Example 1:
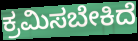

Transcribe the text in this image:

ಕ್ರಮಿಸಬೇಕಿದೆ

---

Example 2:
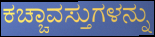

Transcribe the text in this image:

ಕಚ್ಚಾವಸ್ತುಗಳನ್ನು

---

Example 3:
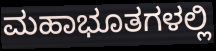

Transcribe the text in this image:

ಮಹಾಭೂತಗಳಲ್ಲಿ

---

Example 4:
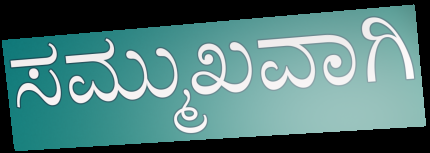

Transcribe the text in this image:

ಸಮ್ಮುಖವಾಗಿ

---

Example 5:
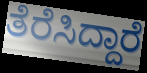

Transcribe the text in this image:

ತೆರೆಸಿದ್ದಾರೆ